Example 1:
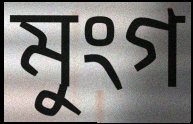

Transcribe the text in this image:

মুংগ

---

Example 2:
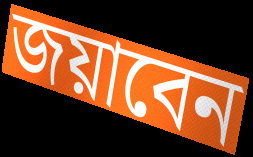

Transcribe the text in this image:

জয়াবেন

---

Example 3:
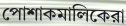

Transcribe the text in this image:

পোশাকমালিকেরা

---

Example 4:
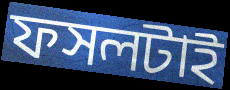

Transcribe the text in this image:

ফসলটাই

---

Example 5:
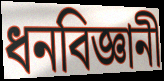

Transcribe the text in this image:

ধনবিজ্ঞানী